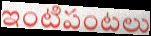
ఇంటిపంటలు